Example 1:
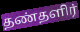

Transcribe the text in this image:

தண்தளிர்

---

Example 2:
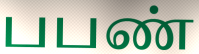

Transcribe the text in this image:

பபண்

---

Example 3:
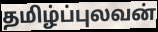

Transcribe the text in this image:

தமிழ்ப்புலவன்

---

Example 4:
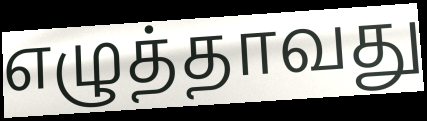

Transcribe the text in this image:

எழுத்தாவது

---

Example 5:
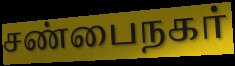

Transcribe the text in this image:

சண்பைநகர்